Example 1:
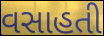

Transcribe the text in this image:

વસાહતી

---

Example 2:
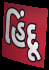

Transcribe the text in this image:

હિંદૂ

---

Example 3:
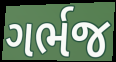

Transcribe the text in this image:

ગર્ભજ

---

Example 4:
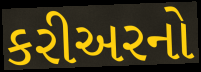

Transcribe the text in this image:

કરીઅરનો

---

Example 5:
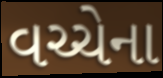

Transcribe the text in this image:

વચ્ચેના